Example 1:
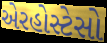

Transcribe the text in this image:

એરહોસ્ટેસો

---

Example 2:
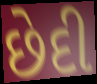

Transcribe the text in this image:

છેદી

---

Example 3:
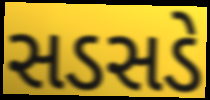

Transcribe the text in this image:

સડસડે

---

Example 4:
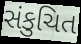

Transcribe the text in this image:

સંકુચિત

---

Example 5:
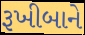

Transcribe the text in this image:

રૂખીબાને